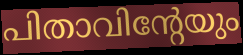
പിതാവിന്റേയും